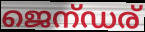
ജെന്ഡര്